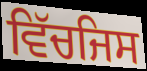
ਵਿੱਚਜਿਸ